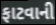
ફાટવાની